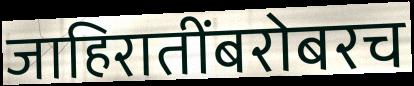
जाहिरातींबरोबरच